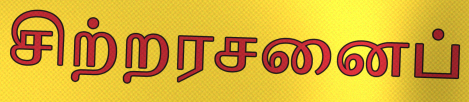
சிற்றரசனைப்